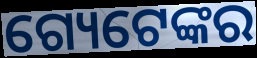
ଗ୍ୟେଟେଙ୍କର